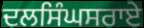
ਦਲਸਿੰਘਸਰਾਏ